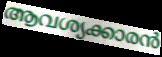
ആവശ്യക്കാരൻ